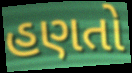
હણતો